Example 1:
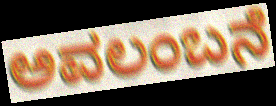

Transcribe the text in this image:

ಅವಲಂಬನೆ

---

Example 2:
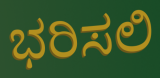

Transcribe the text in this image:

ಭರಿಸಲಿ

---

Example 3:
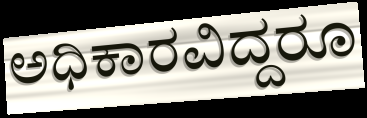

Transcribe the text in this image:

ಅಧಿಕಾರವಿದ್ದರೂ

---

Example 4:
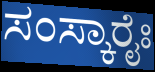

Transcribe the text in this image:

ಸಂಸ್ಕಾರೈಃ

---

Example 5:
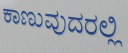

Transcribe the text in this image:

ಕಾಣುವುದರಲ್ಲಿ